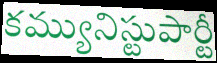
కమ్యునిస్టుపార్టీ